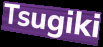
Tsugiki